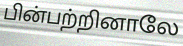
பின்பற்றினாலே